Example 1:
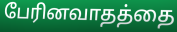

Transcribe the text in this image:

பேரினவாதத்தை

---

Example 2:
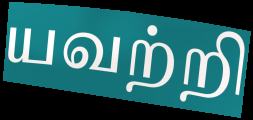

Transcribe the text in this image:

யவற்றி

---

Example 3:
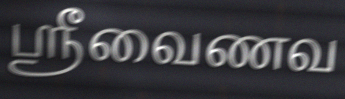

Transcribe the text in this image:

ஸ்ரீவைணவ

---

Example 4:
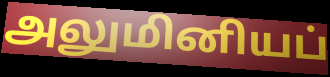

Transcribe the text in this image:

அலுமினியப்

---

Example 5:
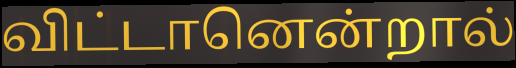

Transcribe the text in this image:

விட்டானென்றால்